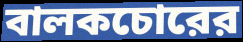
বালকচোরের